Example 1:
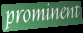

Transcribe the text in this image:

prominent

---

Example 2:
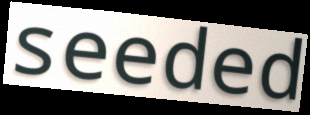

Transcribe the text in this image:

seeded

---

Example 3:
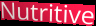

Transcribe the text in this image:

Nutritive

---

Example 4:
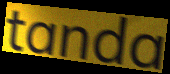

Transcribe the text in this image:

tanda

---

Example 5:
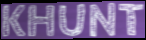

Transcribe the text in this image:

KHUNT